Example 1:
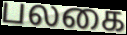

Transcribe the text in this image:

பலகை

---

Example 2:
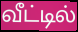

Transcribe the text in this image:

வீட்டில்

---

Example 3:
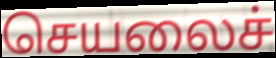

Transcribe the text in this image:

செயலைச்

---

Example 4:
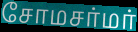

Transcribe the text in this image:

சோமசர்மர்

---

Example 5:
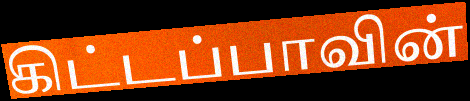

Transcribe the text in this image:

கிட்டப்பாவின்